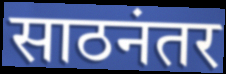
साठनंतर